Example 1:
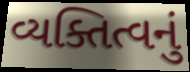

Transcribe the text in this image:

વ્યક્તિત્વનું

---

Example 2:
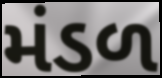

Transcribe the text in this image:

મંડળ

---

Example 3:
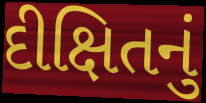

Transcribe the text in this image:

દીક્ષિતનું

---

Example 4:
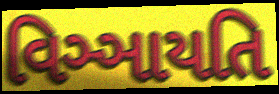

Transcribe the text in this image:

વિઞ્ઞાયતિ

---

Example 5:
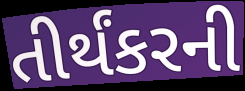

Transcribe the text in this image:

તીર્થંકરની